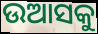
ଉଆସକୁ